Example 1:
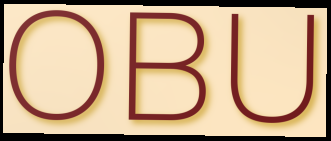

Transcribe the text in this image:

OBU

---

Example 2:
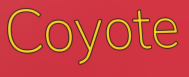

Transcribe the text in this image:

Coyote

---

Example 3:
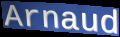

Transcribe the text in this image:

Arnaud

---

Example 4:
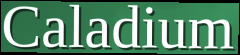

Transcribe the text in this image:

Caladium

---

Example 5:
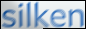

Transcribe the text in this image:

silken